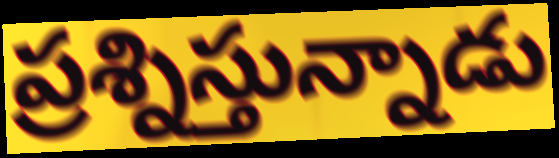
ప్రశ్నిస్తున్నాడు